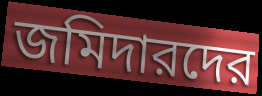
জমিদারদের